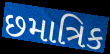
છમાત્રિક